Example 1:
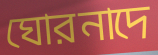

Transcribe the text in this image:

ঘোরনাদে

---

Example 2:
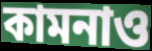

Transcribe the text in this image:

কামনাও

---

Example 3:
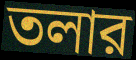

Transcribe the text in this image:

তলার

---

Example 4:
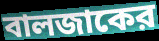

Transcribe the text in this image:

বালজাকের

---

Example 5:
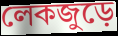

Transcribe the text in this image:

লেকজুড়ে